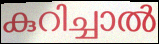
കുറിച്ചാൽ